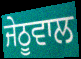
ਜੇਠੂਵਾਲ